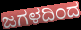
ಜಗಳದಿಂದ